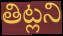
తిట్లని